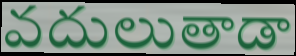
వదులుతాడా